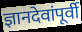
ज्ञानदेवांपूर्वी